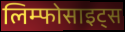
लिम्फोसाइट्स